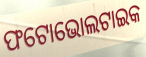
ଫଟୋଭୋଲଟାଇକ